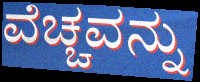
ವೆಚ್ಚವನ್ನು